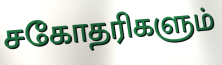
சகோதரிகளும்